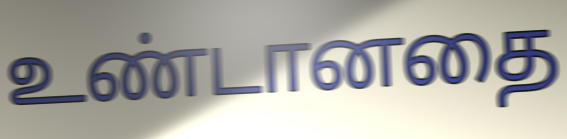
உண்டானதை